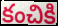
కంచికి